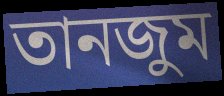
তানজুম